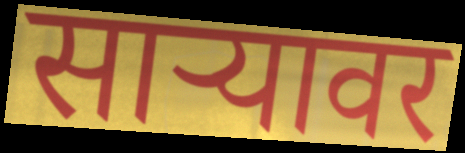
साऱ्यावर